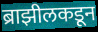
ब्राझीलकडून